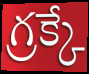
గ్రక్కే